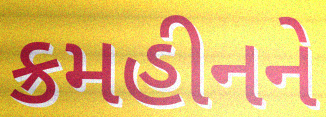
ક્રમહીનને